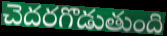
చెదరగొడుతుంది